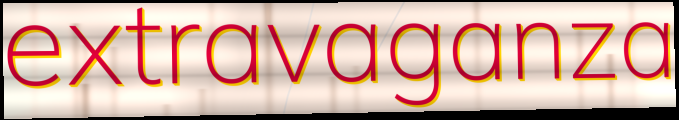
extravaganza